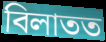
বিলাতত